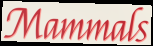
Mammals